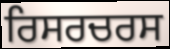
ਰਿਸਰਚਰਸ